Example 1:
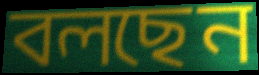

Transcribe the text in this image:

বলছেন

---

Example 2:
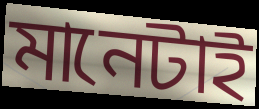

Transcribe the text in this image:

মানেটাই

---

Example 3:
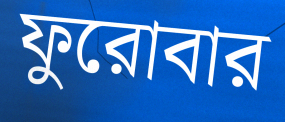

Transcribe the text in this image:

ফুরোবার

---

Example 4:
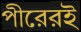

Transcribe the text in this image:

পীরেরই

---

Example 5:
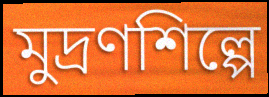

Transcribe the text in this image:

মুদ্রণশিল্পে